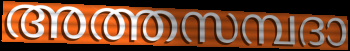
അത്തസമ്പദാ